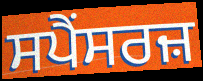
ਸਪੈਂਸਰਜ਼